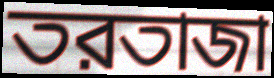
তরতাজা